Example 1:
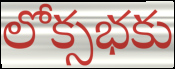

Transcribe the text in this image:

లోక్సభకు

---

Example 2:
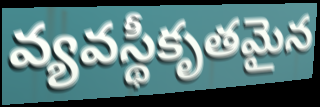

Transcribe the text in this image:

వ్యవస్థీకృతమైన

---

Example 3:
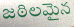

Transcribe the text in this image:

జఠిలమైన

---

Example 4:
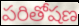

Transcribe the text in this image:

పరితోషణ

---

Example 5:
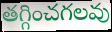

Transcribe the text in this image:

తగ్గించగలవు